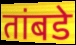
तांबडे